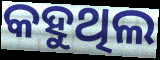
କହୁଥିଲ